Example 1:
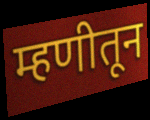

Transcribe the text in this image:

म्हणीतून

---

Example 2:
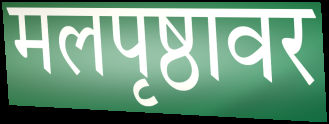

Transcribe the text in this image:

मलपृष्ठावर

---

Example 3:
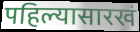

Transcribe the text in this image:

पहिल्यासारखं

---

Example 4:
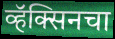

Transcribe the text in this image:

व्हॅक्सिनचा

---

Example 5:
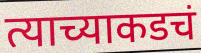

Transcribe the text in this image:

त्याच्याकडचं